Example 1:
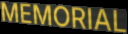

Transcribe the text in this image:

MEMORIAL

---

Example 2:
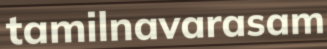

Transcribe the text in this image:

tamilnavarasam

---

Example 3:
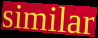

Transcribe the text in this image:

similar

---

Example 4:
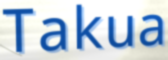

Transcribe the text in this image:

Takua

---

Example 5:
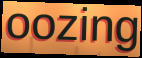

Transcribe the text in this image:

oozing